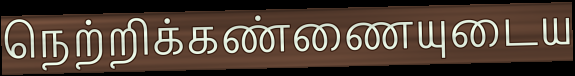
நெற்றிக்கண்ணையுடைய